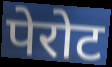
पेरोट